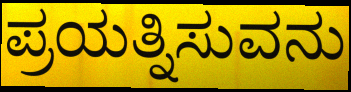
ಪ್ರಯತ್ನಿಸುವನು